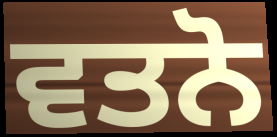
ਵਤਨੋ